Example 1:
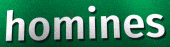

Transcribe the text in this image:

homines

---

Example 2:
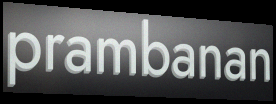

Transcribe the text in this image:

prambanan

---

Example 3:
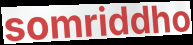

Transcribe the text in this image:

somriddho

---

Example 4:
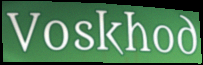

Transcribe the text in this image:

Voskhod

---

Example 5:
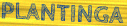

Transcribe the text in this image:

PLANTINGA